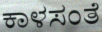
ಕಾಳಸಂತೆ